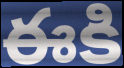
ఈకి